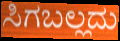
ಸಿಗಬಲ್ಲದು